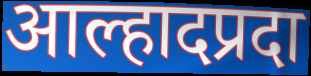
आल्हादप्रदा